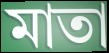
মাতা